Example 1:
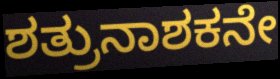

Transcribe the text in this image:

ಶತ್ರುನಾಶಕನೇ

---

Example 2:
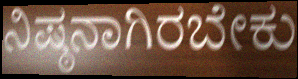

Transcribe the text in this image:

ನಿಷ್ಠನಾಗಿರಬೇಕು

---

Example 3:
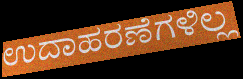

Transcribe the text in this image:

ಉದಾಹರಣೆಗಳಿಲ್ಲ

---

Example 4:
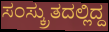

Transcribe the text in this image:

ಸಂಸ್ಕ್ರುತದಲ್ಲಿದ್ದ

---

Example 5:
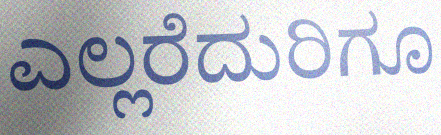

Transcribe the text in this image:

ಎಲ್ಲರೆದುರಿಗೂ